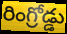
రింగ్రోడ్డు